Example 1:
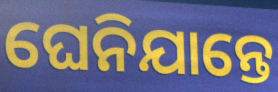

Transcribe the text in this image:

ଘେନିଯାନ୍ତେ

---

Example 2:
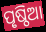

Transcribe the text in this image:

ପୃଷ୍ଠିଆ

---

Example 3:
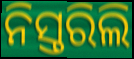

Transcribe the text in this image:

ନିସ୍ତରିଲି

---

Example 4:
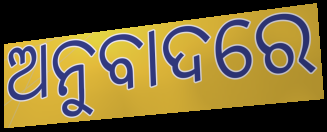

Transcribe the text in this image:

ଅନୁବାଦରେ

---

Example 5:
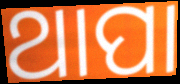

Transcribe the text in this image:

ଥାପା